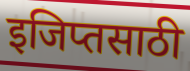
इजिप्तसाठी